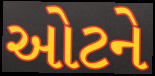
ઓટને